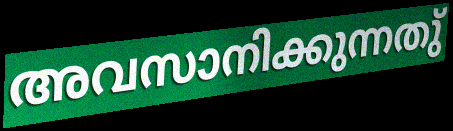
അവസാനിക്കുന്നതു്